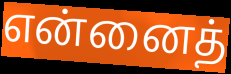
என்னைத்